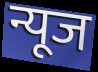
न्यूज